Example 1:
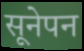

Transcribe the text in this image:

सूनेपन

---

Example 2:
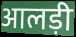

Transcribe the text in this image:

आलड़ी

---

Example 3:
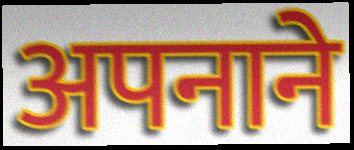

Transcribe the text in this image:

अपनाने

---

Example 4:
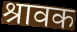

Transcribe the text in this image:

श्रावक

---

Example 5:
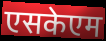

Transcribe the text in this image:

एसकेएम